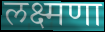
लक्ष्मणा